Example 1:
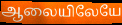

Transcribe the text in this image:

ஆலையிலேயே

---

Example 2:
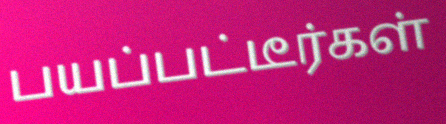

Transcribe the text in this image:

பயப்பட்டீர்கள்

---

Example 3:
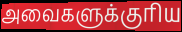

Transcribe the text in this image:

அவைகளுக்குரிய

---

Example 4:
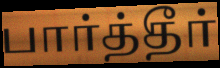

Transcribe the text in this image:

பார்த்தீர்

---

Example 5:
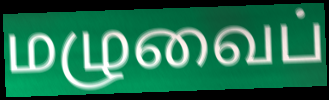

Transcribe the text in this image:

மழுவைப்